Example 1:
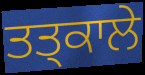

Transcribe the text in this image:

ਤਤ੍ਕਾਲੇ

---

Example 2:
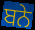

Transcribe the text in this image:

ਬਨੇ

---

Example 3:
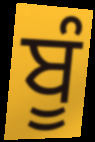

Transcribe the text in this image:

ਬੂੰ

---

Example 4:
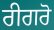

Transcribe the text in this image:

ਰੀਗਰੋ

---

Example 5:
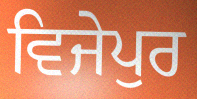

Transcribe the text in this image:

ਵਿਜੇਪੁਰ